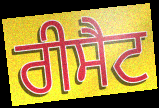
ਰੀਸੈਟ